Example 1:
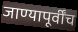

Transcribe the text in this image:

जाण्यापूर्वींच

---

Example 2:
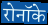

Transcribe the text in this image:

रोनॉके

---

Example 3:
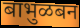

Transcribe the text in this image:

बाभुळबन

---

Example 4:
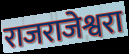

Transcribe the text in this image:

राजराजेश्वरा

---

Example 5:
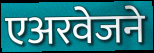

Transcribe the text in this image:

एअरवेजने